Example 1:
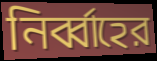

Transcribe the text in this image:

নির্ব্বাহের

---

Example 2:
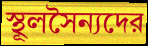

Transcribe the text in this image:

স্থূলসৈন্যদের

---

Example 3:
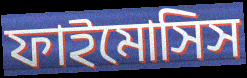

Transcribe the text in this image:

ফাইমোসিস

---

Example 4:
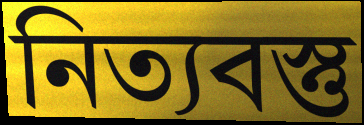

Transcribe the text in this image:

নিত্যবস্তু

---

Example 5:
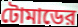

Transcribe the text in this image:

টোমাডের